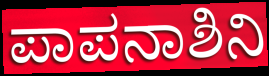
ಪಾಪನಾಶಿನಿ